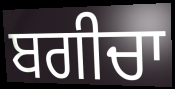
ਬਗੀਚਾ